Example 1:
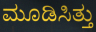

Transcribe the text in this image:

ಮೂಡಿಸಿತ್ತು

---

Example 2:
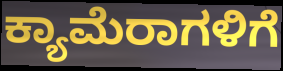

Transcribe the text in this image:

ಕ್ಯಾಮೆರಾಗಳಿಗೆ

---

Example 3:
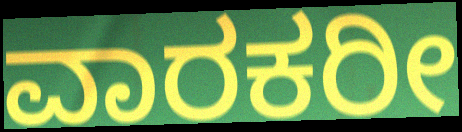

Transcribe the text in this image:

ವಾರಕರೀ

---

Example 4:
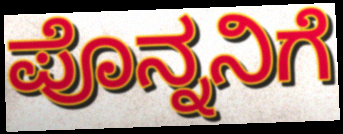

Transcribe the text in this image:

ಪೊನ್ನನಿಗೆ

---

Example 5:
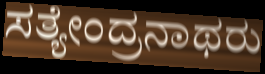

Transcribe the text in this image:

ಸತ್ಯೇಂದ್ರನಾಥರು